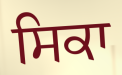
ਸਿਕਾ